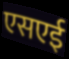
एसएई